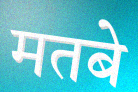
मतबे